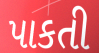
પાકતી